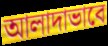
আলাদাভাবে